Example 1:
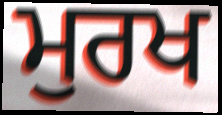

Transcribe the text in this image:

ਮੁਰਖ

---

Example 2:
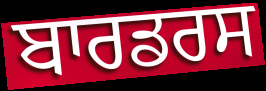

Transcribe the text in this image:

ਬਾਰਡਰਸ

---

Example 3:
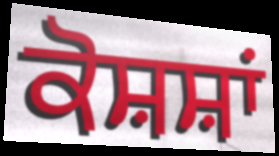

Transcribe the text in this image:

ਕੋਸ਼ਸ਼ਾਂ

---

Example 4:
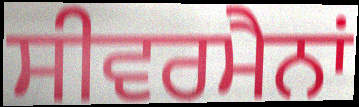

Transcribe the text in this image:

ਸੀਵਰਮੈਨਾਂ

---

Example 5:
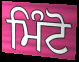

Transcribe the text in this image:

ਮਿੰਟੋ